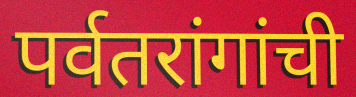
पर्वतरांगांची